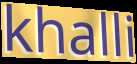
khalli